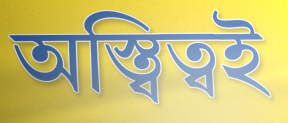
অস্ত্বিত্বই